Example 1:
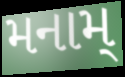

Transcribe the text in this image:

મનામ્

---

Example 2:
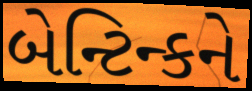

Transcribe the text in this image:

બેન્ટિન્કને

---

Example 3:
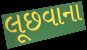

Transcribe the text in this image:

લૂછવાના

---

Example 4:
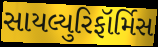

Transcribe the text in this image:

સાયલ્યુરિફૉર્મિસ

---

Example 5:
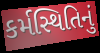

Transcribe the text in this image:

કર્મસ્થિતિનું